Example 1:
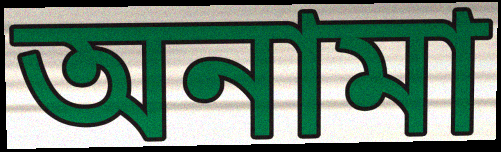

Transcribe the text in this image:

অনামা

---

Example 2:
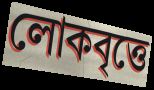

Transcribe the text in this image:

লোকবৃত্তে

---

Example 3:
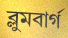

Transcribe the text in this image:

ব্লুমবার্গ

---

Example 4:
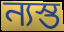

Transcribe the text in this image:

ন্যস্ত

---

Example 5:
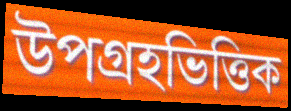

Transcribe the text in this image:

উপগ্রহভিত্তিক